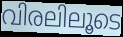
വിരലിലൂടെ